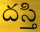
దస్తి